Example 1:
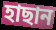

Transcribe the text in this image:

হাছান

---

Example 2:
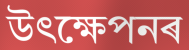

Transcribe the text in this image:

উৎক্ষেপনৰ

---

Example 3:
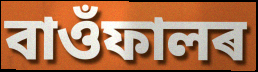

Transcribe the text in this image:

বাওঁফালৰ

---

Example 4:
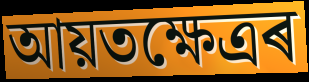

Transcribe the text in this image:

আয়তক্ষেত্ৰৰ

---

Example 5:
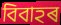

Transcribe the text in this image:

বিবাহৰ